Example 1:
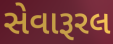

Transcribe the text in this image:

સેવારૂરલ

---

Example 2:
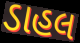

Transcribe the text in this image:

ડાહલ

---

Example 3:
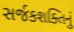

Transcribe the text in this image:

સર્જકશક્તિનું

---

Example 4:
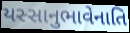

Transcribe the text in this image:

યસ્સાનુભાવેનાતિ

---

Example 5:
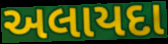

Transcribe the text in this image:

અલાયદા